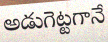
అడుగెట్టగానే